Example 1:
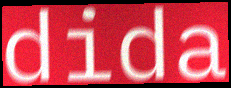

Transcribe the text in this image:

dida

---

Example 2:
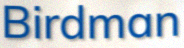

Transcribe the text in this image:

Birdman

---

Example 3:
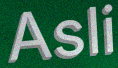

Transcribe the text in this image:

Asli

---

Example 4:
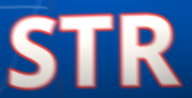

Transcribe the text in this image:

STR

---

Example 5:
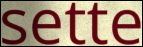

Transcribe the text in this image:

sette